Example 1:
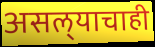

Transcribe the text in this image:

असल्याचाही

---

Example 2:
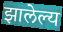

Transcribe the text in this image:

झालेल्य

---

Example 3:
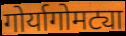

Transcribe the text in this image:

गोर्यागोमट्या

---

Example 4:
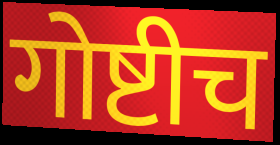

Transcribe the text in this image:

गोष्टीच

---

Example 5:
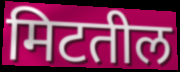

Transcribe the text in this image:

मिटतील